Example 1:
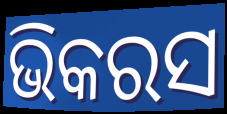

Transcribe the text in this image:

ଭିକରସ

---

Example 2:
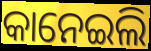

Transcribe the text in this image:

କାନେଇଲି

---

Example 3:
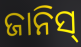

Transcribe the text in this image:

ଜାନିସ୍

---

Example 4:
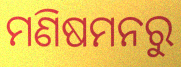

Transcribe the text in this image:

ମଣିଷମନରୁ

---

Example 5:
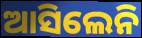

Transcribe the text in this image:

ଆସିଲେନି